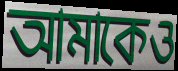
আমাকেও